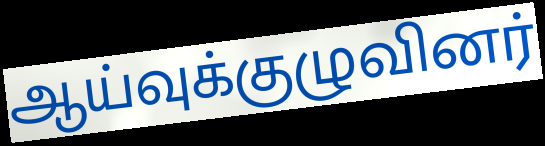
ஆய்வுக்குழுவினர்